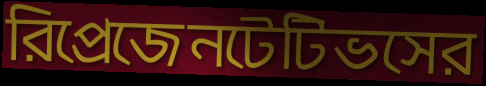
রিপ্রেজেনটেটিভসের